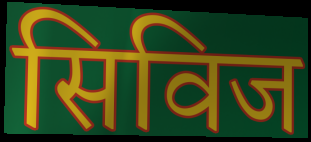
सिविज